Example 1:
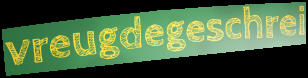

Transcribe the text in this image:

vreugdegeschrei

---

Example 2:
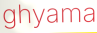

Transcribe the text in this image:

ghyama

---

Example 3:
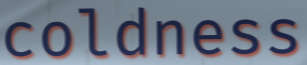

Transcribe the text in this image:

coldness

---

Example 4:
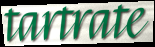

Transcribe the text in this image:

tartrate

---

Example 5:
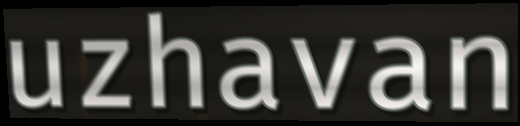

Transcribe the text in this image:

uzhavan